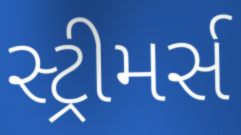
સ્ટ્રીમર્સ